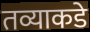
तव्याकडे